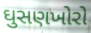
ઘુસણખોરો